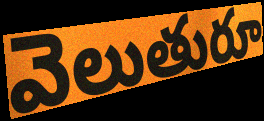
వెలుతురూ